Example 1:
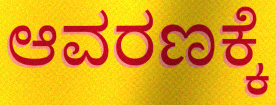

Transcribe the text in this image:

ಆವರಣಕ್ಕೆ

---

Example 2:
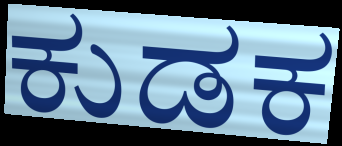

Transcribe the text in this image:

ಕುಡಕ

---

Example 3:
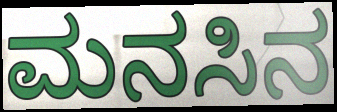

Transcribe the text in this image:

ಮನಸಿನ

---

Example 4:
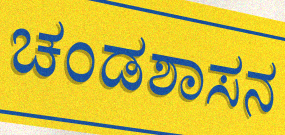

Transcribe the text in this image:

ಚಂಡಶಾಸನ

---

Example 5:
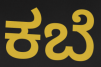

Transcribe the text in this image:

ಕಬೆ